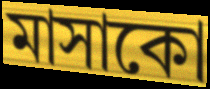
মাসাকো